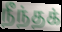
நீந்தக்